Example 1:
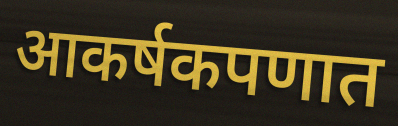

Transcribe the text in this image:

आकर्षकपणात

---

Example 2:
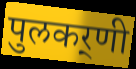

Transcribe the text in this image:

पुलकर्णी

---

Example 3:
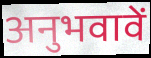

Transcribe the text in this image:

अनुभवावें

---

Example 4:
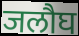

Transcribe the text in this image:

जलौघ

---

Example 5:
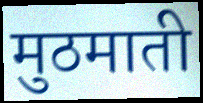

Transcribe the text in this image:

मुठमाती